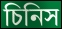
চিনিস